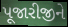
પૂજારીજીને